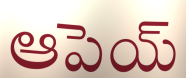
ఆపెయ్